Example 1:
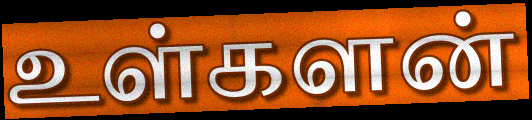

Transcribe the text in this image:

உள்களன்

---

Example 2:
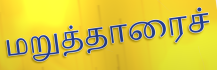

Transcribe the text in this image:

மறுத்தாரைச்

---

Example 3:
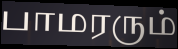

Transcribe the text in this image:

பாமரரும்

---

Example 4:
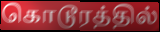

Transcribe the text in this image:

கொடூரத்தில்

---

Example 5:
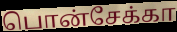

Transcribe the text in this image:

பொன்சேக்கா